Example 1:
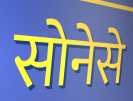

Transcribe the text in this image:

सोनेसे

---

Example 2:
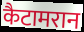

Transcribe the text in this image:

कैटामरान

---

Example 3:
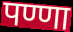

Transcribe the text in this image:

पण्णा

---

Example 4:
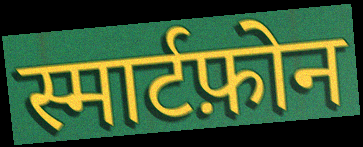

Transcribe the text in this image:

स्‍मार्टफ़ोन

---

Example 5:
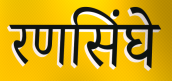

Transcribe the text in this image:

रणसिंघे